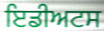
ਇਡੀਅਟਸ